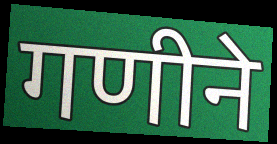
गणीने